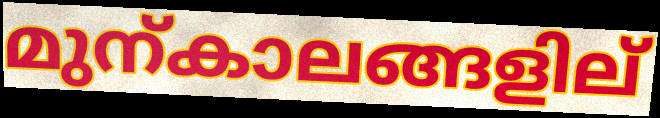
മുന്കാലങ്ങളില്